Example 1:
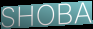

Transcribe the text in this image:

SHOBA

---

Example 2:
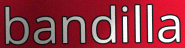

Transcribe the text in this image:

bandilla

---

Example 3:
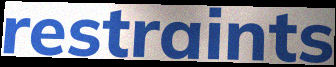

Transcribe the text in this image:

restraints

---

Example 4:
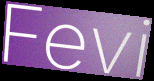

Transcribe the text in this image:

Fevi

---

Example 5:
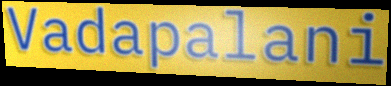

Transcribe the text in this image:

Vadapalani